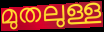
മുതലുള്ള